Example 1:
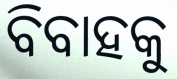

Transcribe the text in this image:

ବିବାହକୁ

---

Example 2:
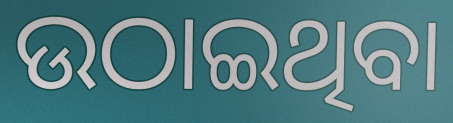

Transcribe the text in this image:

ଉଠାଇଥିବା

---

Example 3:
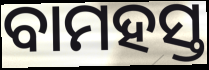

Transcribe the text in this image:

ବାମହସ୍ତ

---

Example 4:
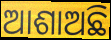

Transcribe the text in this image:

ଆଶାଅଛି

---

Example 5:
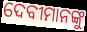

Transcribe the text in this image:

ଦେବୀମାନଙ୍କୁ